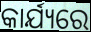
କାର୍ଯ୍ଯରେ